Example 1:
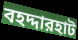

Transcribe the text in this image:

বহদ্দারহাট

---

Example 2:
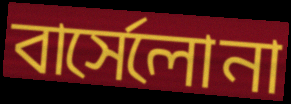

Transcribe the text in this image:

বার্সেলোনা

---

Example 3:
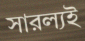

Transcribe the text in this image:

সারল্যই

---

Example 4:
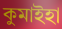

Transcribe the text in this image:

কুমাইহা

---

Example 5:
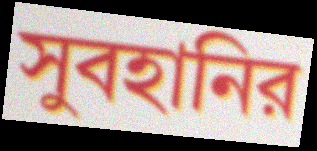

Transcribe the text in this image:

সুবহানির